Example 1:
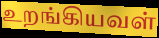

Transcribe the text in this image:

உறங்கியவள்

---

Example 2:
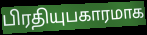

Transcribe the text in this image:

பிரதியுபகாரமாக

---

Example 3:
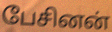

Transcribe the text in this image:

பேசினன்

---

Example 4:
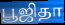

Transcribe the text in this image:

பூஜிதா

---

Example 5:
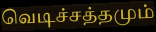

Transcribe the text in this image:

வெடிச்சத்தமும்